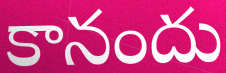
కానందు